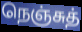
நெஞ்சுத்